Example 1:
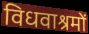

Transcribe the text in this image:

विधवाश्रमों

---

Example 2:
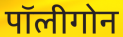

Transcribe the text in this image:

पॉलीगोन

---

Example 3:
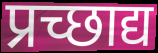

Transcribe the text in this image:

प्रच्छाद्य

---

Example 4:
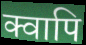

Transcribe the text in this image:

क्वापि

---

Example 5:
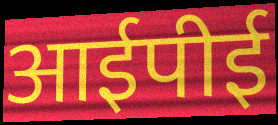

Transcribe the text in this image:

आईपीई